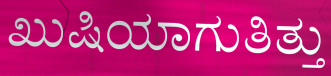
ಖುಷಿಯಾಗುತಿತ್ತು